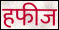
हफीज